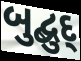
બુદ્બુદ્